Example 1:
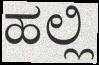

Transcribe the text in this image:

ಹಲ್ಲಿ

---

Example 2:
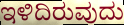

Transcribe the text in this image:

ಇಳಿದಿರುವುದು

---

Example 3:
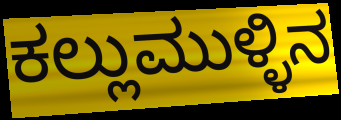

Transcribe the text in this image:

ಕಲ್ಲುಮುಳ್ಳಿನ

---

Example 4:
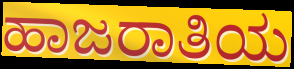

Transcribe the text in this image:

ಹಾಜರಾತಿಯ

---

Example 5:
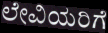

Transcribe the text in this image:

ಲೇವಿಯರಿಗೆ